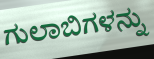
ಗುಲಾಬಿಗಳನ್ನು